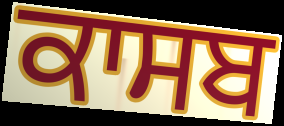
ਕਾਸਬ